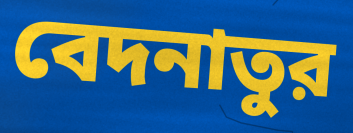
বেদনাতুর